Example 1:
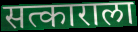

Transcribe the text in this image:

सत्काराला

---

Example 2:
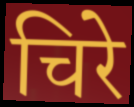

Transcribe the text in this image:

चिरे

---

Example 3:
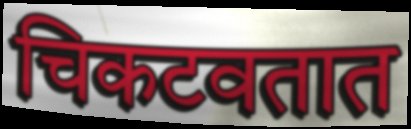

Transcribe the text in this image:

चिकटवतात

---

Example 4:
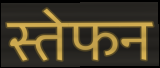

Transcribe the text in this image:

स्तेफन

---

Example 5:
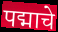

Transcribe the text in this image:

पद्माचे